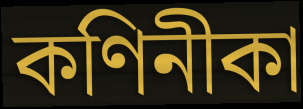
কণিনীকা